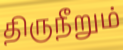
திருநீறும்